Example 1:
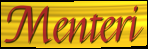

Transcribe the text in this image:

Menteri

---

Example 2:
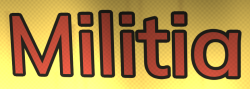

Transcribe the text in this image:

Militia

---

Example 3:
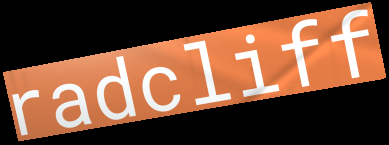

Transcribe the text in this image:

radcliff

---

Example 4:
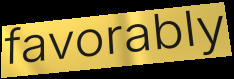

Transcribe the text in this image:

favorably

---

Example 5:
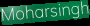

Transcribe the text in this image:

Moharsingh